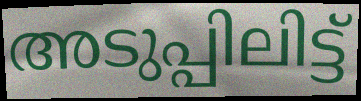
അടുപ്പിലിട്ട്